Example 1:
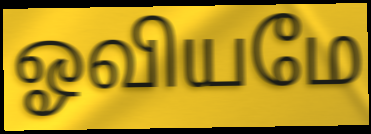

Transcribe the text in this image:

ஓவியமே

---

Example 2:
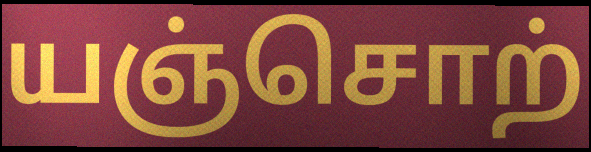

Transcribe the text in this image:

யஞ்சொற்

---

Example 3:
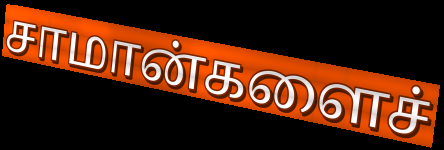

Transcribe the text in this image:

சாமான்களைச்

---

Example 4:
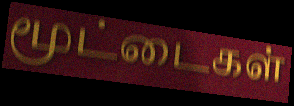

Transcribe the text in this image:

மூட்டைகள்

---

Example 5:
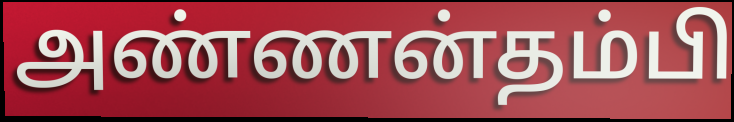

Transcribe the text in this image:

அண்ணன்தம்பி